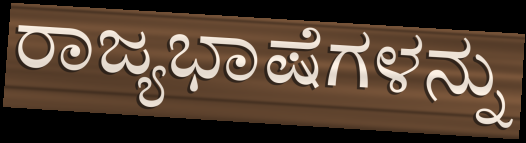
ರಾಜ್ಯಭಾಷೆಗಳನ್ನು